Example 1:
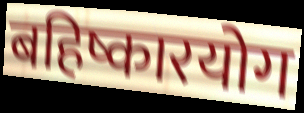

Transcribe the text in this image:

बहिष्कारयोग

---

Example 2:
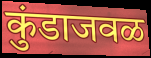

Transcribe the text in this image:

कुंडाजवळ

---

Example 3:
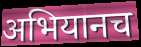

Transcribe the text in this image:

अभियानच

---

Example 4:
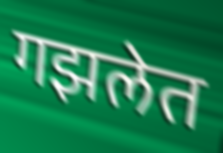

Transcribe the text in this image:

गझलेत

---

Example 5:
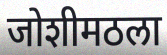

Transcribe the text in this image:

जोशीमठला